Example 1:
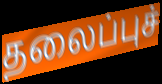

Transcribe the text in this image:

தலைப்புச்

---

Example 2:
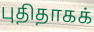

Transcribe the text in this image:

புதிதாகக்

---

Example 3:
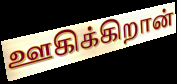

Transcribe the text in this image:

ஊகிக்கிறான்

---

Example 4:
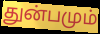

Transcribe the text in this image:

துன்பமும்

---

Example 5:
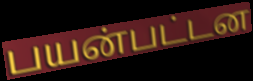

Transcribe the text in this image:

பயன்பட்டன